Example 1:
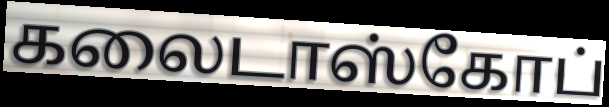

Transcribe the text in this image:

கலைடாஸ்கோப்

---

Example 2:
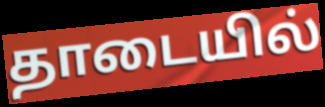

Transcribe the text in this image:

தாடையில்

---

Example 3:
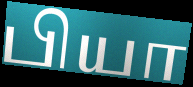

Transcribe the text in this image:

பியா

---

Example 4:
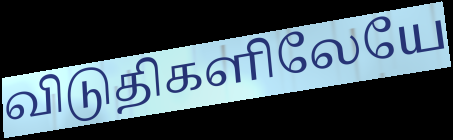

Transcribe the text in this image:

விடுதிகளிலேயே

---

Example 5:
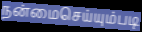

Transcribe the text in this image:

நன்மைசெய்யும்படி